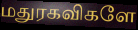
மதுரகவிகளே